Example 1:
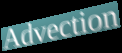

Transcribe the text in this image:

Advection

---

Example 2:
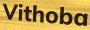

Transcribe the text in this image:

Vithoba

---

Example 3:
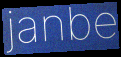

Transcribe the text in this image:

janbe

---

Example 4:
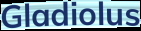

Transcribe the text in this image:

Gladiolus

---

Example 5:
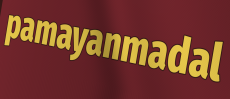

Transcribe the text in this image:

pamayanmadal